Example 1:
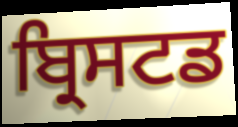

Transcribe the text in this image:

ਬ੍ਰਿਸਟਡ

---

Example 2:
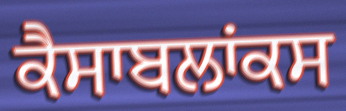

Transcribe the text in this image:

ਕੈਸਾਬਲਾਂਕਸ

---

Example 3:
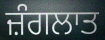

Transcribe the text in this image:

ਜ਼ੰਗਲਾਤ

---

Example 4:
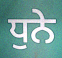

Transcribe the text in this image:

ਧੁਨੇ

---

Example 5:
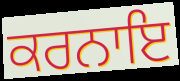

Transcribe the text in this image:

ਕਰਨਾਇ